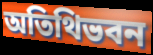
অতিথিভবন